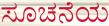
ಸೂಚನೆಯ